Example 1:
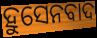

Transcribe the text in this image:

ହୁସେନବାଦ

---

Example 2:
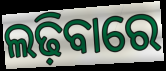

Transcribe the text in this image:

ଲଢ଼ିବାରେ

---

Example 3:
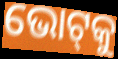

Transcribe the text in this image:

ଭୋଟ୍‍କୁ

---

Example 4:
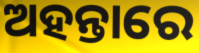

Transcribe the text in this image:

ଅହନ୍ତାରେ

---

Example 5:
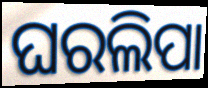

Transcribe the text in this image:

ଘରଲିପା